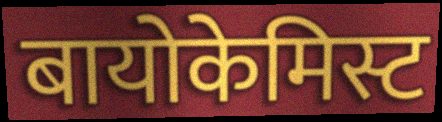
बायोकेमिस्ट